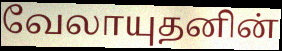
வேலாயுதனின்